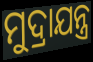
ମୁଦ୍ରାଯନ୍ତ୍ର